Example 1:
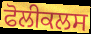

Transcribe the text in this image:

ਫੋਲੀਕਲਸ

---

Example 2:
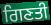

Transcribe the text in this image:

ਗਿਣਤੀ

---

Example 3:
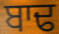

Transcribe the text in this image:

ਬਾਢ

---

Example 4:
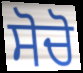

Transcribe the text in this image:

ਸੋਚੋ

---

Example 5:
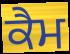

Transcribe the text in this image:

ਕੈਮ